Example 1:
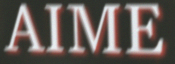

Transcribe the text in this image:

AIME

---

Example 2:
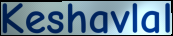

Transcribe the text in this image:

Keshavlal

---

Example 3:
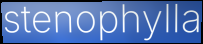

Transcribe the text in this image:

stenophylla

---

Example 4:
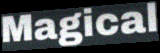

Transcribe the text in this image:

Magical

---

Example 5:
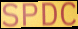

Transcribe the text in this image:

SPDC